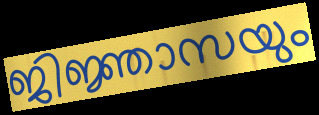
ജിജ്ഞാസയും